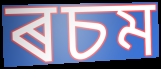
ৰচম